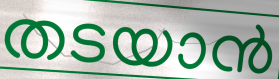
തടയാൻ